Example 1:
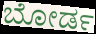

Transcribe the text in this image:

ಬೋರ್ಡ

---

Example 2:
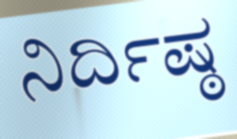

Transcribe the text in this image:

ನಿರ್ದಿಷ್ಠ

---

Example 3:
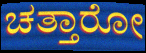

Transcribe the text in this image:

ಚತ್ತಾರೋ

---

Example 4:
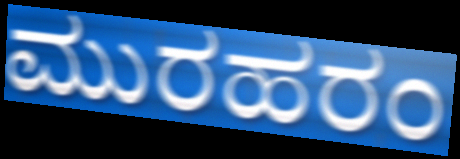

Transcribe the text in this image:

ಮುರಹರಂ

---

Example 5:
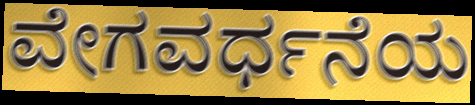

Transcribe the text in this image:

ವೇಗವರ್ಧನೆಯ